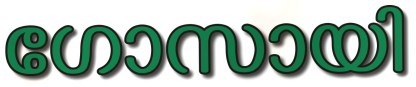
ഗോസായി